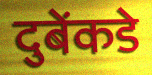
दुबेंकडे